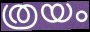
ത്രയം